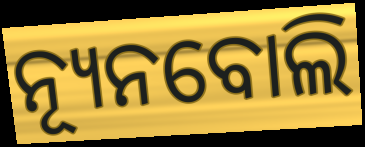
ନ୍ୟୂନବୋଲି